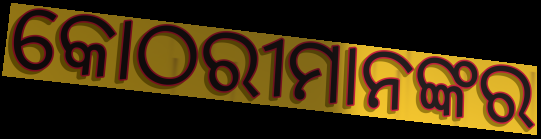
କୋଠରୀମାନଙ୍କର